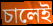
চালেই